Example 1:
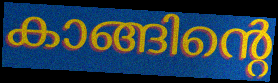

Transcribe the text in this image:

കാങ്ങിന്റെ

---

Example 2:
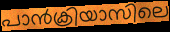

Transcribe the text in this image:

പാൻക്രിയാസിലെ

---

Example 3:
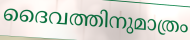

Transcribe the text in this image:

ദൈവത്തിനുമാത്രം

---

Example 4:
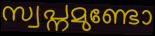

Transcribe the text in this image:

സ്വപ്നമുണ്ടോ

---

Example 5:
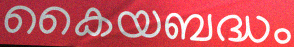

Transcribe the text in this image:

കൈയബദ്ധം